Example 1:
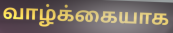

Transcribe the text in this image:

வாழ்க்கையாக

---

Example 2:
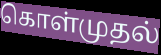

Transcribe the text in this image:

கொள்முதல்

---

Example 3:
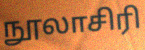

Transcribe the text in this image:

நூலாசிரி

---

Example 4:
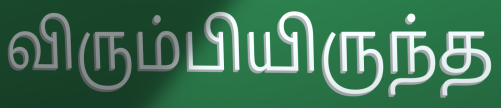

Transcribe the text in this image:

விரும்பியிருந்த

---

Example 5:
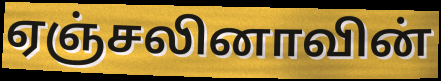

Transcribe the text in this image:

ஏஞ்சலினாவின்